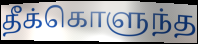
தீக்கொளுந்த